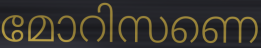
മോറിസണെ